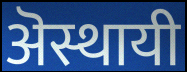
ऄस्थायी